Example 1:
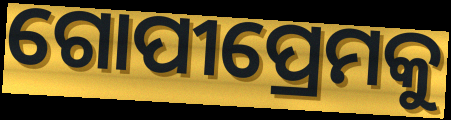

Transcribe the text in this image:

ଗୋପୀପ୍ରେମକୁ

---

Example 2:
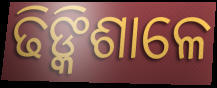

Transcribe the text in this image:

ଢିଙ୍କିଶାଳେ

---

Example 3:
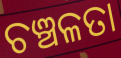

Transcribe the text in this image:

ଚଞ୍ଚଳତା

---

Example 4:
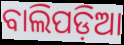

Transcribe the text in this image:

ବାଲିପଡ଼ିଆ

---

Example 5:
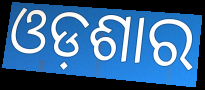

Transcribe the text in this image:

ଓଡ଼ଶାର